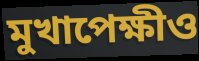
মুখাপেক্ষীও